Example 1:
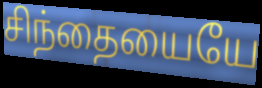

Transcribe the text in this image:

சிந்தையையே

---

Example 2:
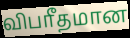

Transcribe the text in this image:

விபரீதமான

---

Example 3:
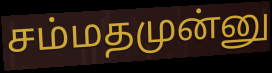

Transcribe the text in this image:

சம்மதமுன்னு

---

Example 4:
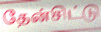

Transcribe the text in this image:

தேன்சிட்டு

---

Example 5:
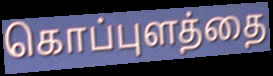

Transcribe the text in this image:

கொப்புளத்தை